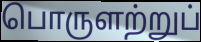
பொருளற்றுப்